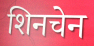
शिनचेन